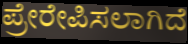
ಪ್ರೇರೇಪಿಸಲಾಗಿದೆ